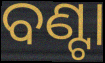
ବଣ୍ଟା